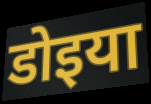
डोइया